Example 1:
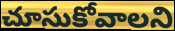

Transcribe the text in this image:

చూసుకోవాలని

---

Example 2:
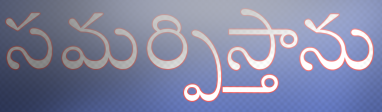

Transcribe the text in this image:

సమర్పిస్తాను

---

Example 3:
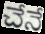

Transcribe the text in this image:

చేనే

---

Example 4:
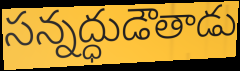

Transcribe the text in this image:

సన్నద్ధుడౌతాడు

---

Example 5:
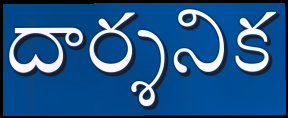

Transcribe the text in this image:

దార్శనిక